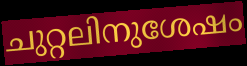
ചുറ്റലിനുശേഷം